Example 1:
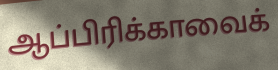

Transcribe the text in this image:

ஆப்பிரிக்காவைக்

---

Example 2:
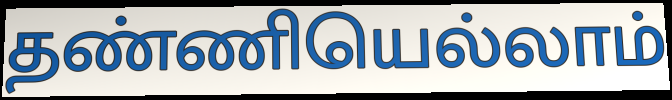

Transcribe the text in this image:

தண்ணியெல்லாம்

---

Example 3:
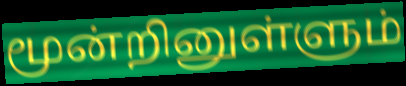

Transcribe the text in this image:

மூன்றினுள்ளும்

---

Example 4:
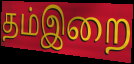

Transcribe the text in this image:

தம்இறை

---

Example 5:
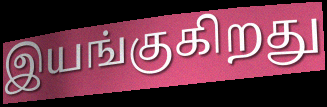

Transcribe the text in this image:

இயங்குகிறது